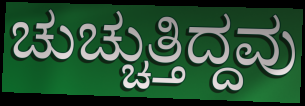
ಚುಚ್ಚುತ್ತಿದ್ದವು